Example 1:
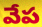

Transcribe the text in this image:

వేప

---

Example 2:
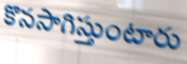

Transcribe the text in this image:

కొనసాగిస్తుంటారు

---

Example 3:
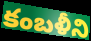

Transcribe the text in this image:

కంబళీని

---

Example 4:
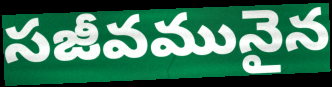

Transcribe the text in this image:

సజీవమునైన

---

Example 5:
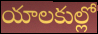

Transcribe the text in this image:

యాలకుల్లో